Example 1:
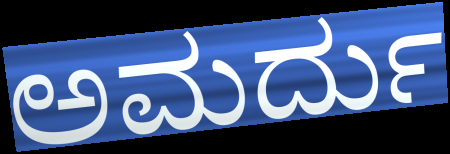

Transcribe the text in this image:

ಅಮರ್ದು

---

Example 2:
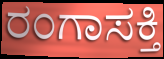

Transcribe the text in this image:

ರಂಗಾಸಕ್ತಿ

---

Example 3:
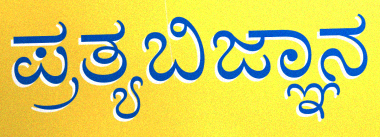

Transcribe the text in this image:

ಪ್ರತ್ಯಬಿಜ್ಞಾನ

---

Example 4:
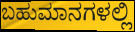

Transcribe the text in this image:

ಬಹುಮಾನಗಳಲ್ಲಿ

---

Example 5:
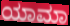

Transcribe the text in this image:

ಯಾಮಾ